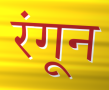
रंगून